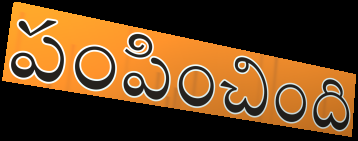
పంపించింది